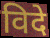
विदे